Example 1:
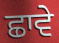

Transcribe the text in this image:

ਛਾਵੇ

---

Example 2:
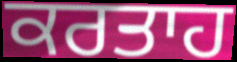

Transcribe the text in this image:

ਕਰਤਾਹ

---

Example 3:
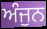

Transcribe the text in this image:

ਅੰਜੁਨ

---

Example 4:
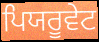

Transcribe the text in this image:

ਪਿਯਰੂਵੇਟ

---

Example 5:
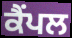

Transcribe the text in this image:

ਕੈਂਪਲ